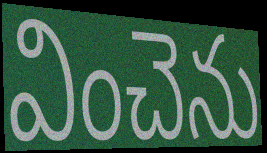
వించెను